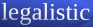
legalistic